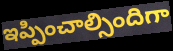
ఇప్పించాల్సిందిగా